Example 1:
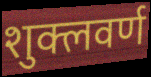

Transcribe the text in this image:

शुक्लवर्ण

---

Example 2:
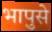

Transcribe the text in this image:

भापुसे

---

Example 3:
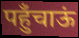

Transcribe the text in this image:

पहुँचाऊं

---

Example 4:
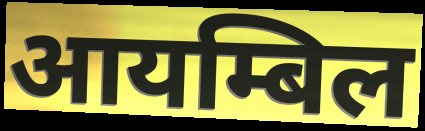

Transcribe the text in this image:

आयम्बिल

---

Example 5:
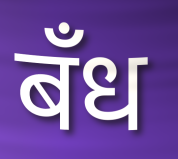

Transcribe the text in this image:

बँध